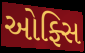
ઓફ્સિ